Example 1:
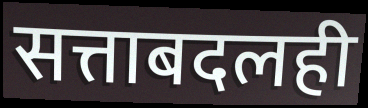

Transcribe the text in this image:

सत्ताबदलही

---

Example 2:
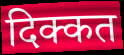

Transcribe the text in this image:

दिक्कत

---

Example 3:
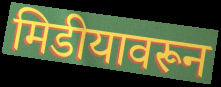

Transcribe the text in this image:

मिडीयावरून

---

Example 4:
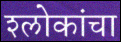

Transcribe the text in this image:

श्लोकांचा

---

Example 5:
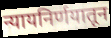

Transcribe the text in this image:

न्यायनिर्णयातून